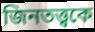
জিনতত্ত্বকে